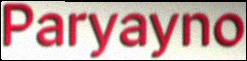
Paryayno